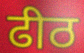
ढीठ